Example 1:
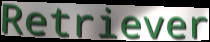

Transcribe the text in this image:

Retriever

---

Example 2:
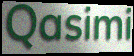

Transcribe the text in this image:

Qasimi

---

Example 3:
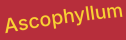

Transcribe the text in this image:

Ascophyllum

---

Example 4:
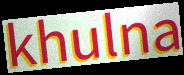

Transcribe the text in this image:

khulna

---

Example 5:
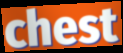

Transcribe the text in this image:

chest